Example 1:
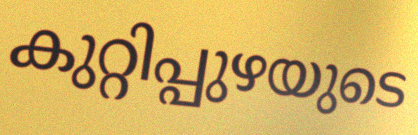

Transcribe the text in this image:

കുറ്റിപ്പുഴയുടെ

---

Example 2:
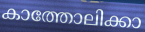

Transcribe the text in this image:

കാത്തോലിക്കാ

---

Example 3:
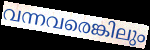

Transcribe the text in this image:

വന്നവരെങ്കിലും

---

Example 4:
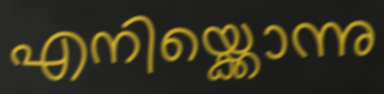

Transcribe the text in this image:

എനിയ്ക്കൊന്നു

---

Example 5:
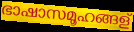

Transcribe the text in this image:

ഭാഷാസമൂഹങ്ങള്